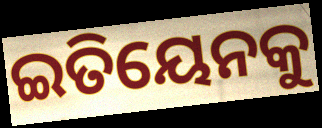
ଇତିୟେନକୁ